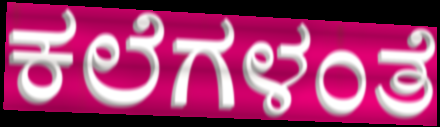
ಕಲೆಗಳಂತೆ